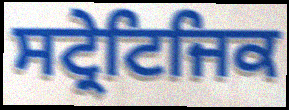
ਸਟ੍ਰੇਟਿਜਿਕ